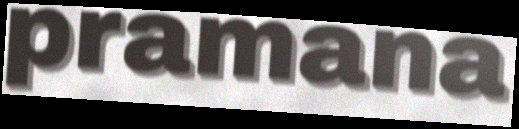
pramana